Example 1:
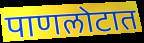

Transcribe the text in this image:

पाणलोटात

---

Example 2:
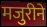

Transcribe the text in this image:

मजुरीने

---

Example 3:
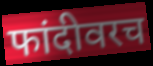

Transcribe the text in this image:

फांदीवरच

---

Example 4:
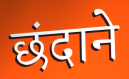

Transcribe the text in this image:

छंदाने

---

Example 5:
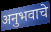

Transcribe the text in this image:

अनुभवाचे